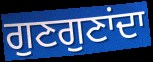
ਗੁਣਗੁਣਾਂਦਾ